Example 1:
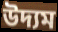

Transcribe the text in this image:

উদ্যম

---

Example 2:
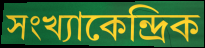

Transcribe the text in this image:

সংখ্যাকেন্দ্রিক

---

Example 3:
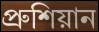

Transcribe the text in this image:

প্রুশিয়ান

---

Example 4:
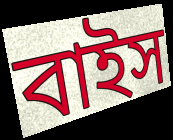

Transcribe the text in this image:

বাইস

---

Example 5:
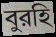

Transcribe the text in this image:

বুরহি